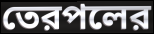
তেরপলের